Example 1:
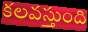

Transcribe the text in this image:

కలవస్తుంది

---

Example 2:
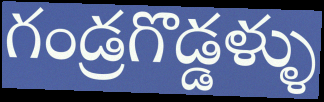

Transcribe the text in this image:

గండ్రగొడ్డళ్ళు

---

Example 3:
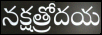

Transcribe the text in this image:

నక్షత్రోదయ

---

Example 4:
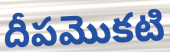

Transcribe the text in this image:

దీపమొకటి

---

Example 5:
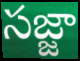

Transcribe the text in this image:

సజ్జా